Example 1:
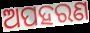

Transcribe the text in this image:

ଅପହରଣ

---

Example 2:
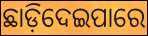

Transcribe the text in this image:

ଛାଡ଼ିଦେଇପାରେ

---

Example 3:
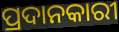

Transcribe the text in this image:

ପ୍ରଦାନକାରୀ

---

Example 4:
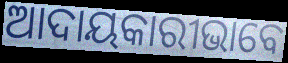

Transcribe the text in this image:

ଆଦାୟକାରୀଭାବେ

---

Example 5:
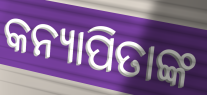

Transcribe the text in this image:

କନ୍ୟାପିତାଙ୍କ